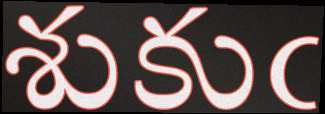
శుకుఁ